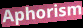
Aphorism